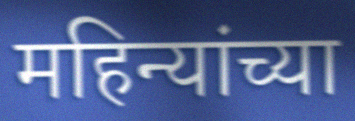
महिन्यांच्या